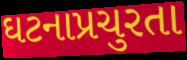
ઘટનાપ્રચુરતા